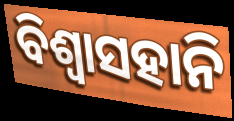
ବିଶ୍ବାସହାନି